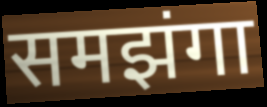
समझंगा